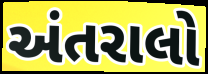
અંતરાલો